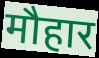
मौहार